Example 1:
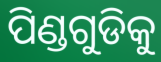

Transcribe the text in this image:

ପିଣ୍ଡଗୁଡିକୁ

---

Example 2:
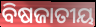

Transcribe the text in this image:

ବିଷଜାତୀୟ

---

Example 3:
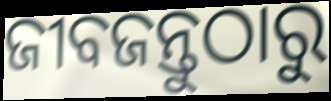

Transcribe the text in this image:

ଜୀବଜନ୍ତୁଠାରୁ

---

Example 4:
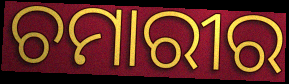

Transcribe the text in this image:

ଚମାରୀର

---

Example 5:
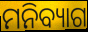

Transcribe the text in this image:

ମନିବ୍ୟାଗ